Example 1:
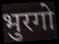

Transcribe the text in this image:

भुरगो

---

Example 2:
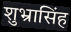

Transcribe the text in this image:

शुभ्रासिंह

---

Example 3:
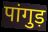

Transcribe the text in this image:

पांगुड़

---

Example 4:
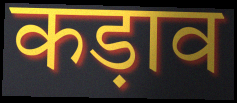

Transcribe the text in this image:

कड़ाव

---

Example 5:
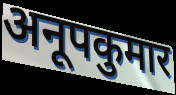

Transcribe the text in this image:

अनूपकुमार